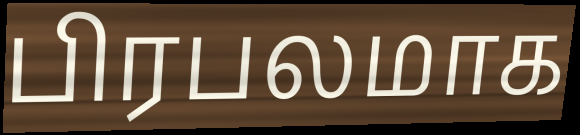
பிரபலமாக